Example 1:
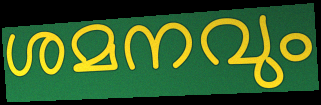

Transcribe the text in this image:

ശമനവും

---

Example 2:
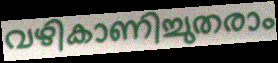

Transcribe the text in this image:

വഴികാണിച്ചുതരാം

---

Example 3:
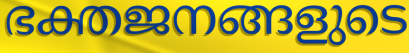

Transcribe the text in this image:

ഭക്തജനങ്ങളുടെ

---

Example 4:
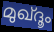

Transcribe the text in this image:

മുഖ്ദൂം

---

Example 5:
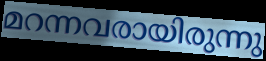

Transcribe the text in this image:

മറന്നവരായിരുന്നു